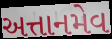
અત્તાનમેવ